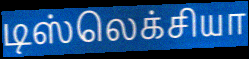
டிஸ்லெக்சியா